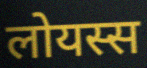
लोयस्स